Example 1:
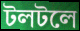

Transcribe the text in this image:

টলটলে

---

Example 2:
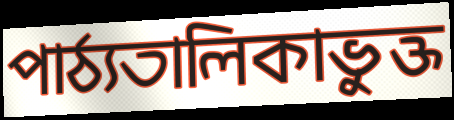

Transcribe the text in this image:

পাঠ্যতালিকাভুক্ত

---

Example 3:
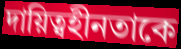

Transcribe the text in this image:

দায়িত্বহীনতাকে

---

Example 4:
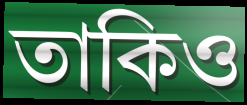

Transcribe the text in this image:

তাকিও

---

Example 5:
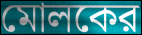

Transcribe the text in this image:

মোলকের